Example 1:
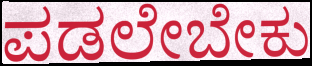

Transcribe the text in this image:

ಪಡಲೇಬೇಕು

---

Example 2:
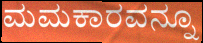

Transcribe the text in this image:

ಮಮಕಾರವನ್ನೂ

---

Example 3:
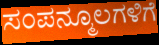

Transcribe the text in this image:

ಸಂಪನ್ಮೂಲಗಳಿಗೆ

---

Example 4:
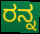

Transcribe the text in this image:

ರನ್ನ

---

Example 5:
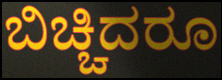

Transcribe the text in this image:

ಬಿಚ್ಚಿದರೂ